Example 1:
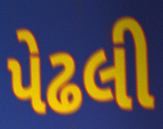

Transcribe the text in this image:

પેઢલી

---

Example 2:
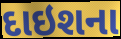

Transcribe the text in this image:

દાઇશના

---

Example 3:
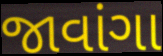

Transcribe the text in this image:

જાવાંગા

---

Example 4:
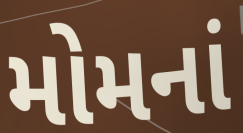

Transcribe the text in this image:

મોમનાં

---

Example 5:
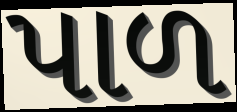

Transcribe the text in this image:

પાળ